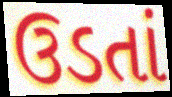
ઉડતાં